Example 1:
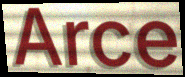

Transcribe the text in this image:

Arce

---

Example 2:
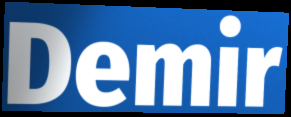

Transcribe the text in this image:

Demir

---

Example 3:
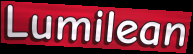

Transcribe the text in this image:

Lumilean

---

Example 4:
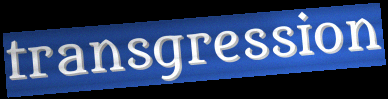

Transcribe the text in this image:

transgression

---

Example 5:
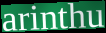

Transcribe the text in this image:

arinthu